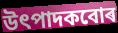
উৎপাদকবোৰ